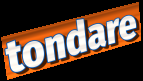
tondare